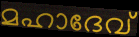
മഹാദേവ്